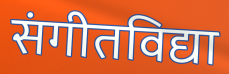
संगीतविद्या